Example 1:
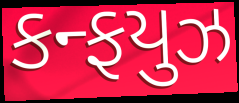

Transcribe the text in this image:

કન્ફયુઝ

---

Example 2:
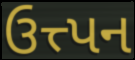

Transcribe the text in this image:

ઉત્ત્પન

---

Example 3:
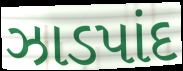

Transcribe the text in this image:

ઝાડપાંદ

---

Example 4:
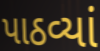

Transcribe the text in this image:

પાઠવ્યાં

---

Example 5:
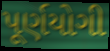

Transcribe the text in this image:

પૂર્ણયોગી